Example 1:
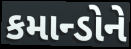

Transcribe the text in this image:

કમાન્ડોને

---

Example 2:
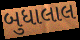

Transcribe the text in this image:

બુધાલાલ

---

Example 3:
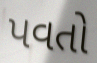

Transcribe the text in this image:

પવતો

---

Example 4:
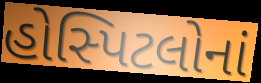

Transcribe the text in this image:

હોસ્પિટલોનાં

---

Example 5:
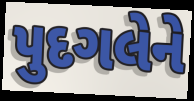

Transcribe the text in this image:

પુદગલેને